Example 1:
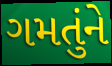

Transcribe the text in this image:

ગમતુંને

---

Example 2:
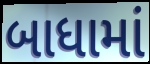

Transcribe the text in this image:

બાધામાં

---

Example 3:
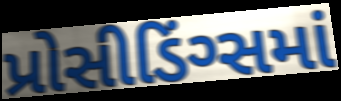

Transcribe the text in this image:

પ્રોસીડિંગ્સમાં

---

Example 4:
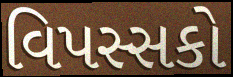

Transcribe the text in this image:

વિપસ્સકો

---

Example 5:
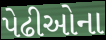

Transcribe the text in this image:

પેઢીઓના